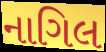
નાગિલ